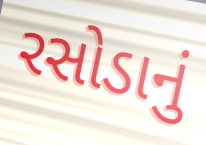
રસોડાનું